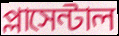
প্লাসেন্টাল